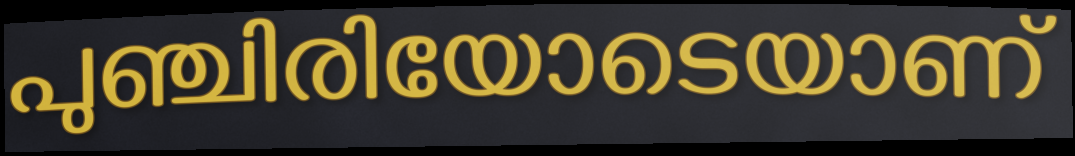
പുഞ്ചിരിയോടെയാണ്